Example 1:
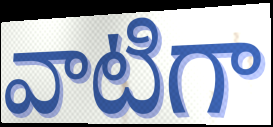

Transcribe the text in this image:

వాటిగా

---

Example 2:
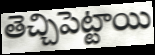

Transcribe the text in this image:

తెచ్చిపెట్టాయి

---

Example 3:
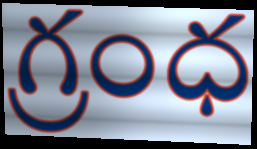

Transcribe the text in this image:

గ్రంధ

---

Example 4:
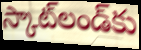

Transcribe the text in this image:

స్కాట్‌లండ్‌కు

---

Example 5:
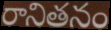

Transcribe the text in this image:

రానితనం